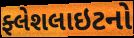
ફ્લેશલાઇટનો